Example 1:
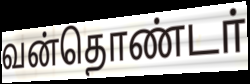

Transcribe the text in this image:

வன்தொண்டர்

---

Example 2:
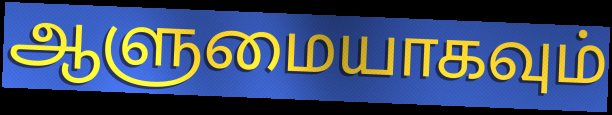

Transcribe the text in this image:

ஆளுமையாகவும்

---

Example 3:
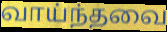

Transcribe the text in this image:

வாய்ந்தவை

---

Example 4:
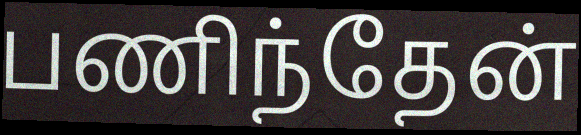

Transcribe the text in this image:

பணிந்தேன்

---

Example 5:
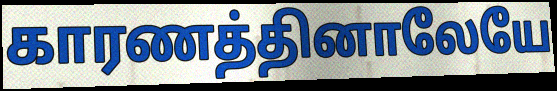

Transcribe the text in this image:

காரணத்தினாலேயே